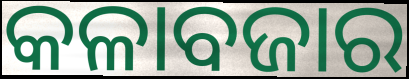
କଳାବଜାର